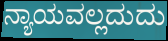
ನ್ಯಾಯವಲ್ಲದುದು